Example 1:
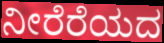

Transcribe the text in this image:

ನೀರೆರೆಯದ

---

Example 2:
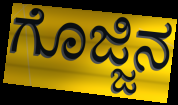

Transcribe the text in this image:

ಗೊಜ್ಜಿನ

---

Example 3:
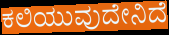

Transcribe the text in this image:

ಕಲಿಯುವುದೇನಿದೆ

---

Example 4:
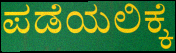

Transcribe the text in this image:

ಪಡೆಯಲಿಕ್ಕೆ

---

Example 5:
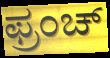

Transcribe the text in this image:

ಫ್ರಂಚ್